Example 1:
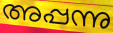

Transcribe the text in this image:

അപ്പന്നു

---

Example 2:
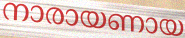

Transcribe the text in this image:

നാരായണായ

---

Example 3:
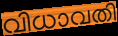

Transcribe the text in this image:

വിധാവതി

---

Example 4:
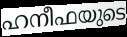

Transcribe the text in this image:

ഹനീഫയുടെ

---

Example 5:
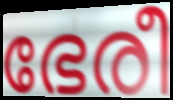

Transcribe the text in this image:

ഭേരീ